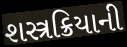
શસ્ત્રક્રિયાની